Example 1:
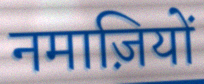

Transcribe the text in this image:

नमाज़ियों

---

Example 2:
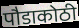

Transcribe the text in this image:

पौडाकोठी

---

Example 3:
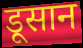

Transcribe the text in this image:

डूसान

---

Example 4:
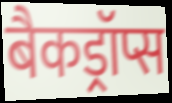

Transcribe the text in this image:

बैकड्रॉप्स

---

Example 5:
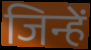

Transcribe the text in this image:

जिन्‍हें